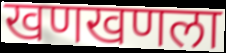
खणखणला